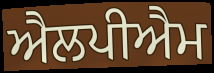
ਐਲਪੀਐਮ